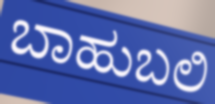
ಬಾಹುಬಲಿ